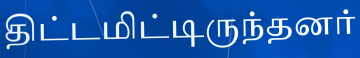
திட்டமிட்டிருந்தனர்